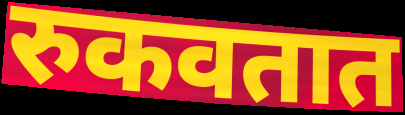
रुकवतात